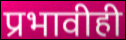
प्रभावीही